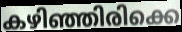
കഴിഞ്ഞിരിക്കെ